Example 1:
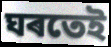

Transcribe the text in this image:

ঘৰতেই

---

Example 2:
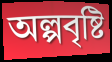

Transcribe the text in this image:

অল্পবৃষ্টি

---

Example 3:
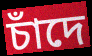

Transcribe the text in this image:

চাঁদে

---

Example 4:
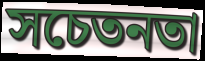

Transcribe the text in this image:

সচেতনতা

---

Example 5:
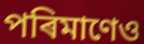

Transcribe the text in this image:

পৰিমাণেও